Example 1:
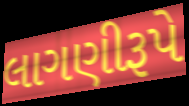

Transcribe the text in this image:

લાગણીરૂપે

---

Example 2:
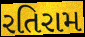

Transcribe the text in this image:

રતિરામ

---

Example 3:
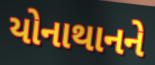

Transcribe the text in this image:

યોનાથાનને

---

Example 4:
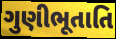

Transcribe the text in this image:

ગુણીભૂતાતિ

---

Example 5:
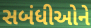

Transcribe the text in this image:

સબંધીઓને